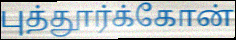
புத்தூர்க்கோன்